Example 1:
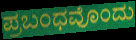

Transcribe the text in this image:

ಪ್ರಬಂಧವೊಂದು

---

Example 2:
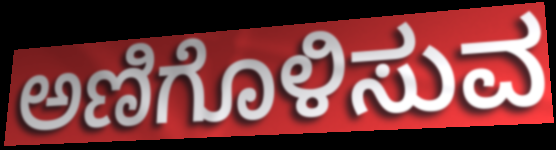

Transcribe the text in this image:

ಅಣಿಗೊಳಿಸುವ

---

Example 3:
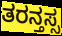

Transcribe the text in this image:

ತರನ್ತಸ್ಸ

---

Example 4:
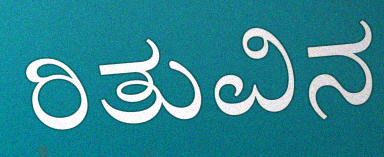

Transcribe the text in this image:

ರಿತುವಿನ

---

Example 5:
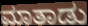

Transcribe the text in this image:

ಮಾತಾಡು